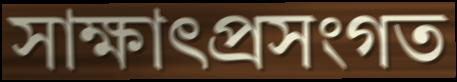
সাক্ষাৎপ্ৰসংগত